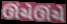
ઊંચેઊંચે